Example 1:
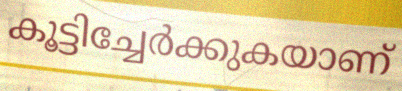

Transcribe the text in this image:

കൂട്ടിച്ചേർക്കുകയാണ്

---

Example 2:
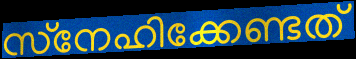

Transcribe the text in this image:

സ്‌നേഹിക്കേണ്ടത്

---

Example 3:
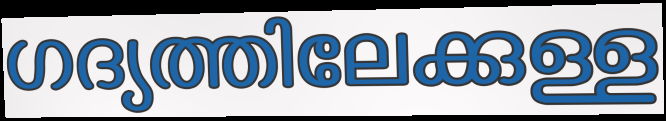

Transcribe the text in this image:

ഗദ്യത്തിലേക്കുള്ള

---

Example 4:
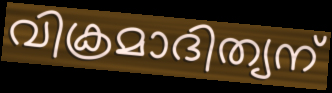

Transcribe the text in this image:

വിക്രമാദിത്യന്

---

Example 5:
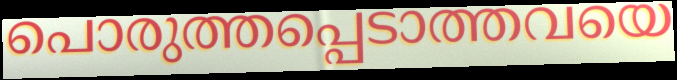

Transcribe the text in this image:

പൊരുത്തപ്പെടാത്തവയെ